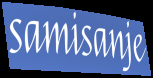
samisanje